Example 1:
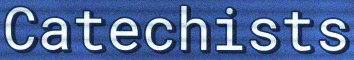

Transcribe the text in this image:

Catechists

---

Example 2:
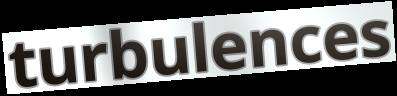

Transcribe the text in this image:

turbulences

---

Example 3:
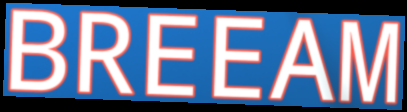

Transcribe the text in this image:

BREEAM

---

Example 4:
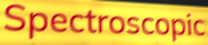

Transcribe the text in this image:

Spectroscopic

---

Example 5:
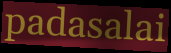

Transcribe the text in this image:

padasalai